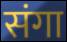
संगा